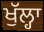
ਖੁੱਲ੍ਹਾ